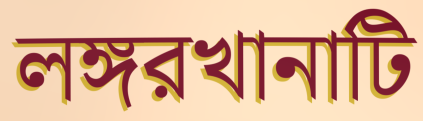
লঙ্গরখানাটি